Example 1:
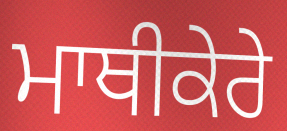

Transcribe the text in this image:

ਮਾਥੀਕੇਰੇ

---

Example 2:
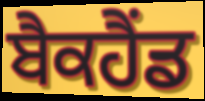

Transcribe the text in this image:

ਬੈਕਹੈਂਡ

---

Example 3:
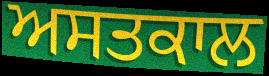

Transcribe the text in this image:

ਅਸਤਕਾਲ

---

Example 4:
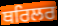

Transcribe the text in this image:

ਥਰਿਲਰ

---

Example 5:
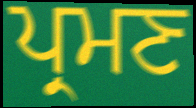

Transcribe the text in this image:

ਪ੍ਰਮਣ